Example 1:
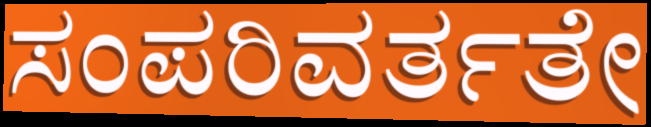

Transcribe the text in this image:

ಸಂಪರಿವರ್ತತೇ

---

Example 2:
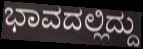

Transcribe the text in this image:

ಭಾವದಲ್ಲಿದ್ದು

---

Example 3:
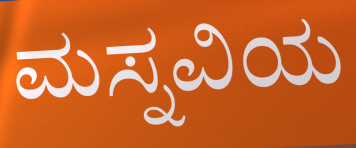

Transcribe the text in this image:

ಮಸ್ನವಿಯ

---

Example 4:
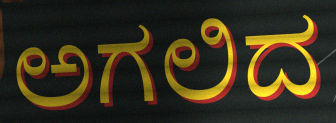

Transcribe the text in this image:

ಅಗಲಿದ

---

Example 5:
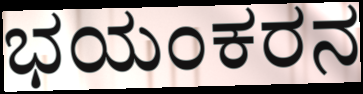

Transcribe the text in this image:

ಭಯಂಕರನ